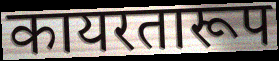
कायरतारूप